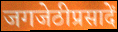
जगजेठीप्रसादें